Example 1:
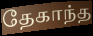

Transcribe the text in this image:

தேகாந்த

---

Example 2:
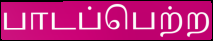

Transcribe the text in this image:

பாடப்பெற்ற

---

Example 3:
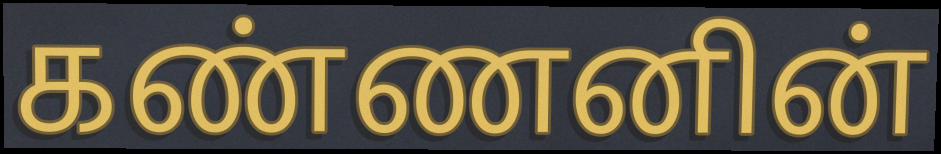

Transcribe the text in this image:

கண்ணனின்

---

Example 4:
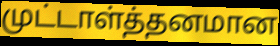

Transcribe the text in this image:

முட்டாள்த்தனமான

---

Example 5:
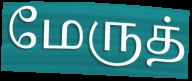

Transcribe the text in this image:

மேருத்